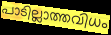
പാടില്ലാത്തവിധം